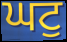
ਘਟੁ